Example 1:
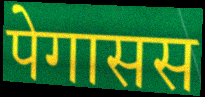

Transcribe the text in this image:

पेगासस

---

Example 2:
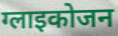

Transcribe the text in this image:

ग्लाइकोजन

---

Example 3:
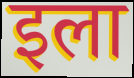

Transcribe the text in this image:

इला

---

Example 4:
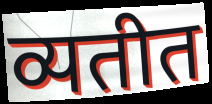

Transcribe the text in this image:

व्यतीत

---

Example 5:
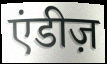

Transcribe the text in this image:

एंडीज़